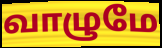
வாழுமே